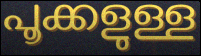
പൂക്കളുള്ള